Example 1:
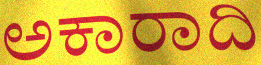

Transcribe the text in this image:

ಅಕಾರಾದಿ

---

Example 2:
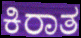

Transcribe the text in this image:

ಕಿರಾತ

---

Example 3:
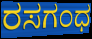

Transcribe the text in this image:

ರಸಗಂಧ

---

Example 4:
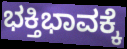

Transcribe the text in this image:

ಭಕ್ತಿಭಾವಕ್ಕೆ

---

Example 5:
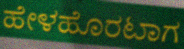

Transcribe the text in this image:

ಹೇಳಹೊರಟಾಗ